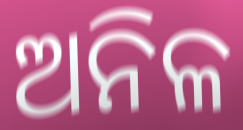
ଅନିଳ